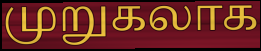
முறுகலாக